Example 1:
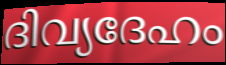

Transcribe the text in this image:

ദിവ്യദേഹം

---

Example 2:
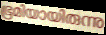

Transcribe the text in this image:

ഭൂമിയായിരുന്നു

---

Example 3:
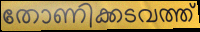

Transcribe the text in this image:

തോണിക്കടവത്ത്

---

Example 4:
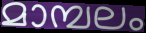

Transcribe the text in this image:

മാമ്പലം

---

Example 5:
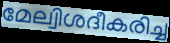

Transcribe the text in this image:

മേല്വിശദീകരിച്ച